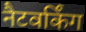
नैटवर्किंग